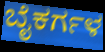
ಬೈಕರ್ಗಳ